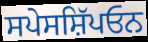
ਸਪੇਸਸ਼ਿੱਪਓਨ